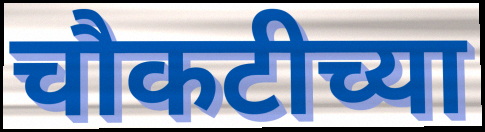
चौकटीच्या